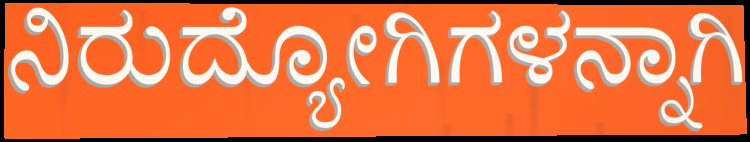
ನಿರುದ್ಯೋಗಿಗಳನ್ನಾಗಿ